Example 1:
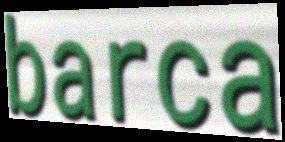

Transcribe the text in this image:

barca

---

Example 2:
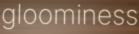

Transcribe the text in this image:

gloominess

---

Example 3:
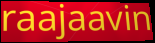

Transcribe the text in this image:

raajaavin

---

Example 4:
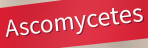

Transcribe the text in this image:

Ascomycetes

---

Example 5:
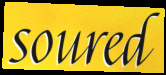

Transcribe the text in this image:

soured